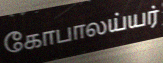
கோபாலய்யர்